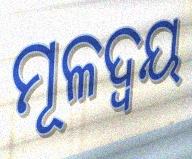
ମୂଳଦ୍ୱୟ